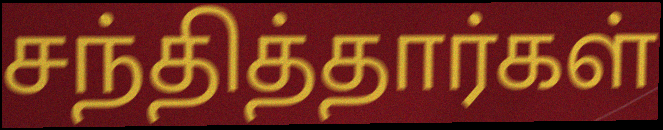
சந்தித்தார்கள்